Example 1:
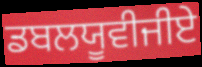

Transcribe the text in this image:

ਡਬਲਯੂਵੀਜੀਏ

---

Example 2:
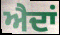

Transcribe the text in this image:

ਐਦਾਂ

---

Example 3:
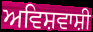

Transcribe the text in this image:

ਅਵਿਸ਼ਵਾਸ਼ੀ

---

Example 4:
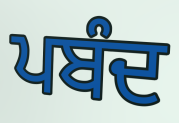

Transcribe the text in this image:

ਪਬੰਦ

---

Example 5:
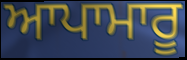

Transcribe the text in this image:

ਆਪਾਮਾਰੂ